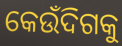
କେଉଁଦିଗକୁ